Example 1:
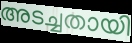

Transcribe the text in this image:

അടച്ചതായി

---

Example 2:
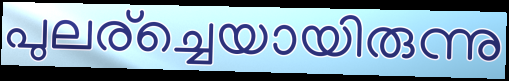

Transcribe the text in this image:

പുലര്ച്ചെയായിരുന്നു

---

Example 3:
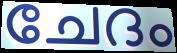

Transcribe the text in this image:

ചേദം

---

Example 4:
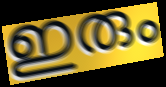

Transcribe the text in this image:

ഇരും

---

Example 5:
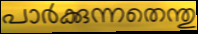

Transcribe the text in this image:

പാർക്കുന്നതെന്തു